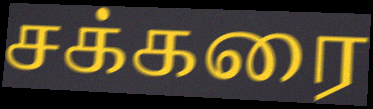
சக்கரை